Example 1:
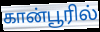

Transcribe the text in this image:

கான்பூரில்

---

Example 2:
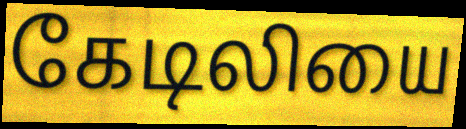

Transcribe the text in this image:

கேடிலியை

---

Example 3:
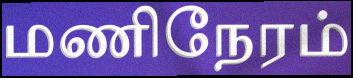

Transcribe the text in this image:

மணிநேரம்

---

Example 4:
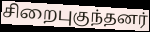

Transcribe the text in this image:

சிறைபுகுந்தனர்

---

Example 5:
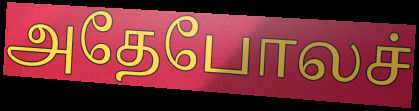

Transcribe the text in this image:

அதேபோலச்